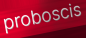
proboscis